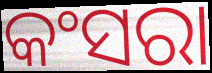
କଂସରା